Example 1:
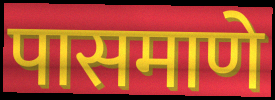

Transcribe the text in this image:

पासमाणे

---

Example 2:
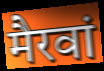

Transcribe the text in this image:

मैरवां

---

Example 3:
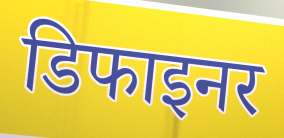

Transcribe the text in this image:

डिफाइनर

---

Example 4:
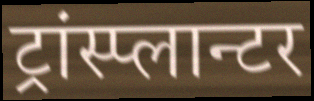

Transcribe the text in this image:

ट्रांस्प्लान्टर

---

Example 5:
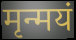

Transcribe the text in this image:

मृन्मयं